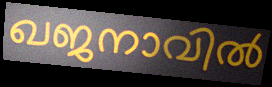
ഖജനാവിൽ